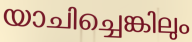
യാചിച്ചെങ്കിലും